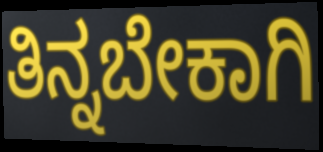
ತಿನ್ನಬೇಕಾಗಿ